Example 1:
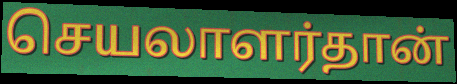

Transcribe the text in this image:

செயலாளர்தான்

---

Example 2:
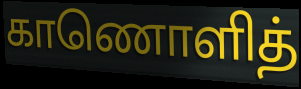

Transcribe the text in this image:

காணொளித்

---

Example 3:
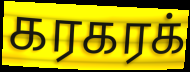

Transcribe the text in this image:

கரகரக்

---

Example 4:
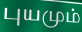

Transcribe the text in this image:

புயமும்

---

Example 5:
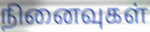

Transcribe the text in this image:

நினைவுகள்